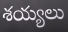
శయ్యలు